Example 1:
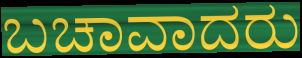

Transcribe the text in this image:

ಬಚಾವಾದರು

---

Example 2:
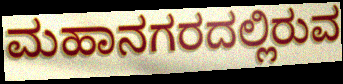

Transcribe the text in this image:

ಮಹಾನಗರದಲ್ಲಿರುವ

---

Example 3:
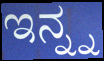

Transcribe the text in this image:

ಇನ್ನ್ನ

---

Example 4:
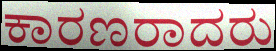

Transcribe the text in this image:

ಕಾರಣರಾದರು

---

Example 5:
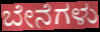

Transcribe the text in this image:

ಬೇನೆಗಳು